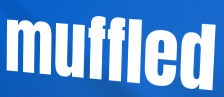
muffled